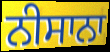
ਨੀਸਾਨਾ